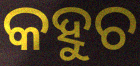
କହୁଚ